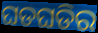
ଘଡଘଡିର